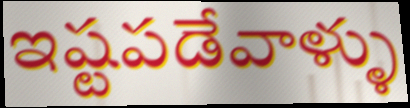
ఇష్టపడేవాళ్ళు